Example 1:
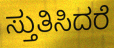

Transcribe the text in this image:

ಸ್ತುತಿಸಿದರೆ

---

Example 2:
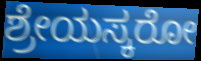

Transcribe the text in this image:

ಶ್ರೇಯಸ್ಕರೋ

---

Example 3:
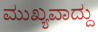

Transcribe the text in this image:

ಮುಖ್ಯವಾದ್ದು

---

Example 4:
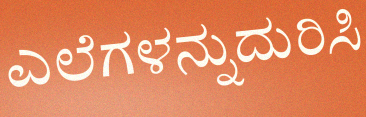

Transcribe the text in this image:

ಎಲೆಗಳನ್ನುದುರಿಸಿ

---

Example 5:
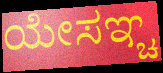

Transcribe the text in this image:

ಯೇಸಞ್ಚ